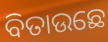
ବିତାଉଛେ